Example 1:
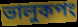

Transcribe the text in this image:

ভালুকপং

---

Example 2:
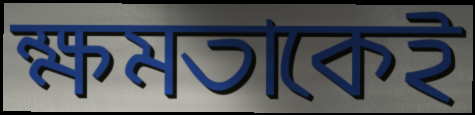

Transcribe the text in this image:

ক্ষমতাকেই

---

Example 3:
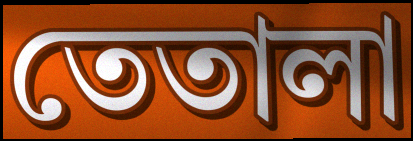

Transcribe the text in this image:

তেতালা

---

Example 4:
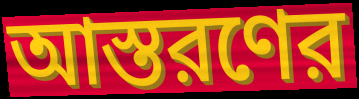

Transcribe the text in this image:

আস্তরণের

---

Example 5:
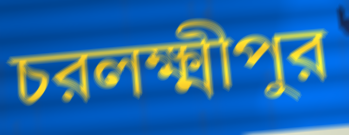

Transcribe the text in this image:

চরলক্ষ্মীপুর